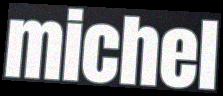
michel